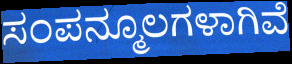
ಸಂಪನ್ಮೂಲಗಳಾಗಿವೆ